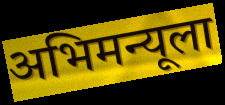
अभिमन्यूला